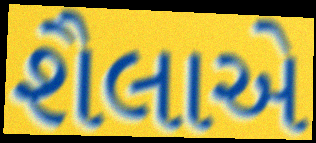
શૈલાએ